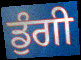
ਡੁੰਗੀ